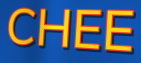
CHEE